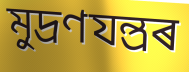
মুদ্ৰণযন্ত্ৰৰ